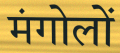
मंगोलों